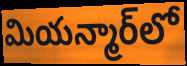
మియన్మార్‌లో